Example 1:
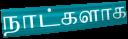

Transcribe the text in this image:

நாட்களாக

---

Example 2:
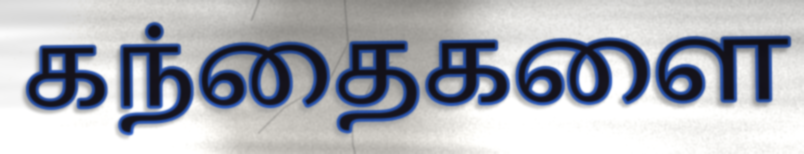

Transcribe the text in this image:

கந்தைகளை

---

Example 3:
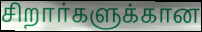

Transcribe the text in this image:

சிறார்களுக்கான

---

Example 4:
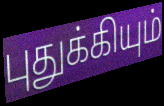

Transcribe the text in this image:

புதுக்கியும்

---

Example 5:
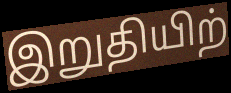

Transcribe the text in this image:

இறுதியிற்